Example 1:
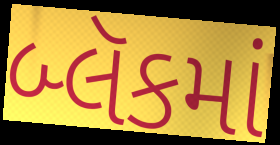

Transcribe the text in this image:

બ્લૅકમાં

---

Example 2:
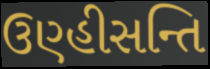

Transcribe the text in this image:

ઉણ્હીસન્તિ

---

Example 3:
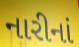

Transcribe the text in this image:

નારીનાં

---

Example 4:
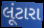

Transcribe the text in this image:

લૂંટારા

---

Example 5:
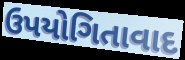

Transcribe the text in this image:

ઉપયોગિતાવાદ